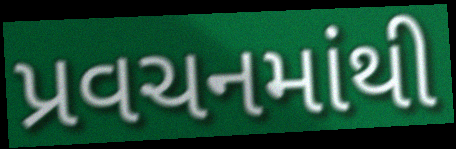
પ્રવચનમાંથી